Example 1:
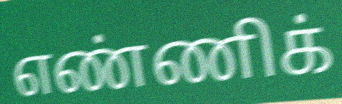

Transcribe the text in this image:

எண்ணிக்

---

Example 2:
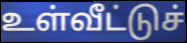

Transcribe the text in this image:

உள்வீட்டுச்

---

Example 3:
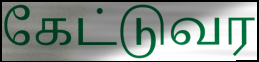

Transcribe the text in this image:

கேட்டுவர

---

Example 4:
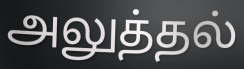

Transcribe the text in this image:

அலுத்தல்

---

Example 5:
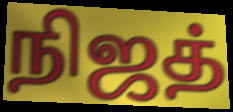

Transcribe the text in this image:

நிஜத்